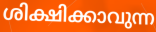
ശിക്ഷിക്കാവുന്ന